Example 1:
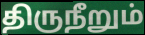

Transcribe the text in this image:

திருநீறும்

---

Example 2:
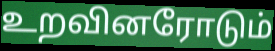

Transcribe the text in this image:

உறவினரோடும்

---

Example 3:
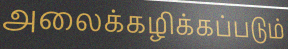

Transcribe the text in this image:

அலைக்கழிக்கப்படும்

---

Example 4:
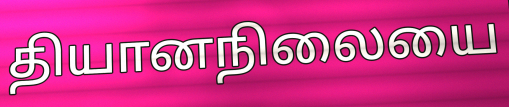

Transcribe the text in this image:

தியானநிலையை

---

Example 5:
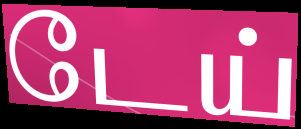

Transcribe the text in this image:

டேய்